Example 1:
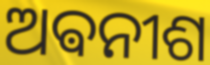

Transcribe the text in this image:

ଅଵନୀଶ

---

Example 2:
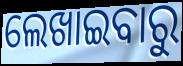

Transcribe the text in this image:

ଲେଖାଇବାରୁ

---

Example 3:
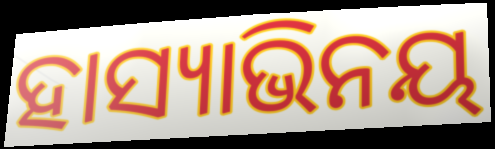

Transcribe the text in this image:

ହାସ୍ୟାଭିନୟ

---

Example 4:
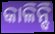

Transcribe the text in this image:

କାଳିନ୍ଦି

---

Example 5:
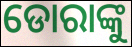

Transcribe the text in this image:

ଡୋରାଙ୍କୁ